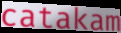
catakam